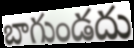
బాగుండదు